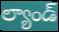
ల్యాండ్